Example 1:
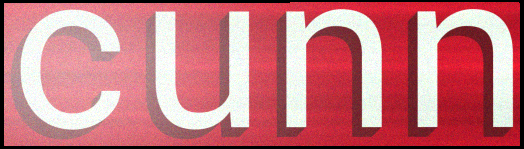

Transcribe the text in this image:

cunn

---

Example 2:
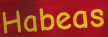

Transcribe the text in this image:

Habeas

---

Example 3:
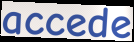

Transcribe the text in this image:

accede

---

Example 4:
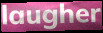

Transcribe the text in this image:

laugher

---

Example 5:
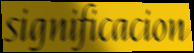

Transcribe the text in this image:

significacion